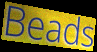
Beads